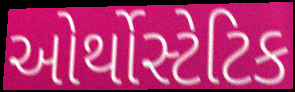
ઓર્થોસ્ટેટિક